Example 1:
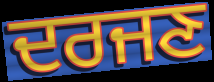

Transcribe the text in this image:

ਦਰਜਣ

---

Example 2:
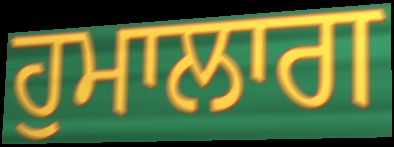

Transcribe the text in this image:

ਹੁਮਾਲਾਗ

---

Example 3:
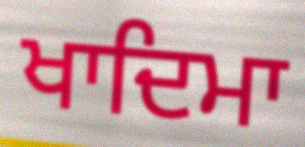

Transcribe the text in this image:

ਖਾਦਿਮਾ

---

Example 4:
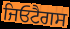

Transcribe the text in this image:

ਜਿਓਟੈਗਸ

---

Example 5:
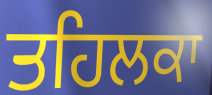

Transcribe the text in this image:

ਤਹਿਲਕਾ